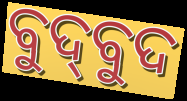
ବୁଦ୍‌ବୁଦ